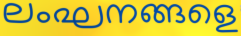
ലംഘനങ്ങളെ